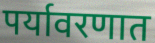
पर्यावरणात